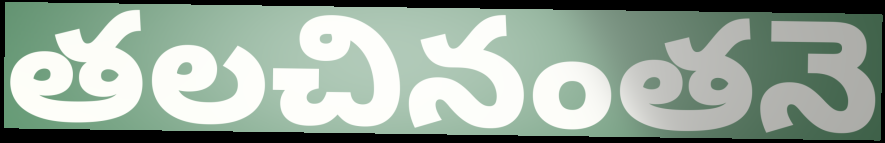
తలచినంతనె